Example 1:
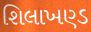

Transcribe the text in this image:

શિલાખણ્ડ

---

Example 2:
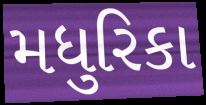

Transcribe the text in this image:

મધુરિકા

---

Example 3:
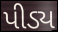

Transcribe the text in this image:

પીડ્ય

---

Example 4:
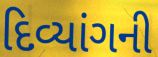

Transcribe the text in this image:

દિવ્યાંગની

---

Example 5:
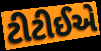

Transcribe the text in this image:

ટીટીઈએ